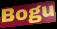
Bogu